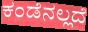
ಕಂಡೆನಲ್ಲದೆ